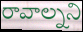
రావాల్నని